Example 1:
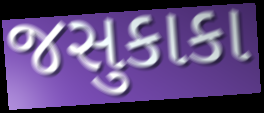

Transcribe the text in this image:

જસુકાકા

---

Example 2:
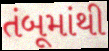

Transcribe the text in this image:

તંબૂમાંથી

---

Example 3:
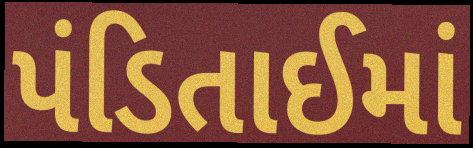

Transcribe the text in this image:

પંડિતાઈમાં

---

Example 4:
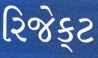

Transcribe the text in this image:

રિજેક્‌ટ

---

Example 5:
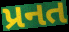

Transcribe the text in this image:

પ્રનત